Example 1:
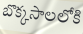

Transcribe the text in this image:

బొక్కసాలలోకి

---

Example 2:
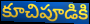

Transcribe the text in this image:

కూచిపూడికి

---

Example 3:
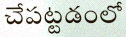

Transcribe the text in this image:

చేపట్టడంలో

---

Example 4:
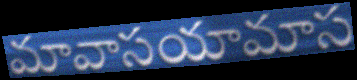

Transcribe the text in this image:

మావాసయామాస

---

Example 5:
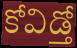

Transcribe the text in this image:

కోవిడ్తో